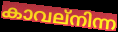
കാവല്നിന്ന